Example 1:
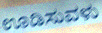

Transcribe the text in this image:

ಊಡಿಸುವಳು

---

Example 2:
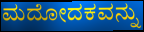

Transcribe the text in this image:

ಮದೋದಕವನ್ನು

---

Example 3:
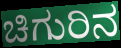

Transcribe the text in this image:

ಚಿಗುರಿನ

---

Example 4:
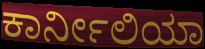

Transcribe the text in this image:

ಕಾರ್ನೀಲಿಯಾ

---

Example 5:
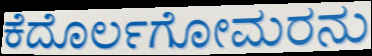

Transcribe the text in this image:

ಕೆದೊರ್ಲಗೋಮರನು